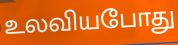
உலவியபோது